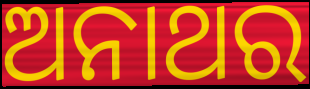
ଅନାଥର